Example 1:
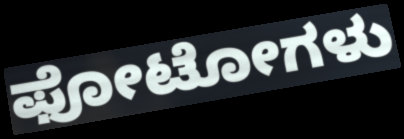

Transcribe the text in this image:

ಫೋಟೋಗಳು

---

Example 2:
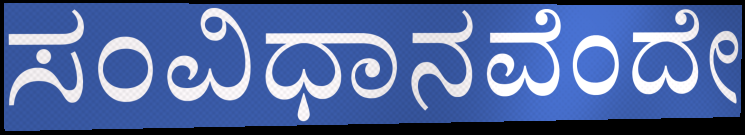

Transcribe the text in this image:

ಸಂವಿಧಾನವೆಂದೇ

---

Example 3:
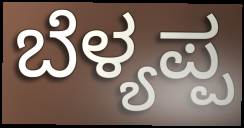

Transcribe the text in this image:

ಬೆಳ್ಯಪ್ಪ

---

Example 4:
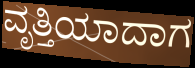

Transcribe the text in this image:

ವೃತ್ತಿಯಾದಾಗ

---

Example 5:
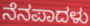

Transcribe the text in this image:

ನೆನಪಾದಳು